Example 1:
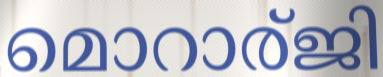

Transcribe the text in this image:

മൊറാര്ജി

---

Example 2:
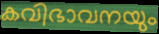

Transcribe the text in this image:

കവിഭാവനയും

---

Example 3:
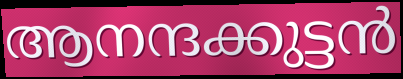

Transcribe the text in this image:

ആനന്ദക്കുട്ടൻ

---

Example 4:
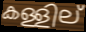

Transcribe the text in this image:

കള്ളില്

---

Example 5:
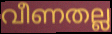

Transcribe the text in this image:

വീണതല്ല